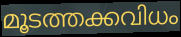
മൂടത്തക്കവിധം